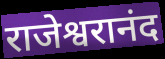
राजेश्वरानंद